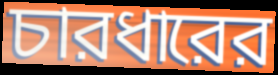
চারধারের